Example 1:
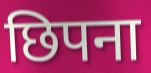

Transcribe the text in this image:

छिपना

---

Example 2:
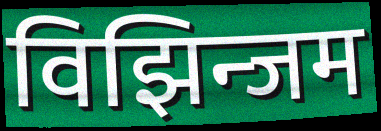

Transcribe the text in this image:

विझिन्जम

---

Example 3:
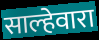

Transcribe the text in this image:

साल्हेवारा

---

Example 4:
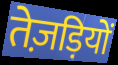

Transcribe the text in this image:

तेज़ड़ियों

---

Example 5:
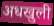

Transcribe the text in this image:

अधखुली